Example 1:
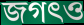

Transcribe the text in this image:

জগৎও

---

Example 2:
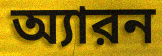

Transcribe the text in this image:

অ্যারন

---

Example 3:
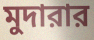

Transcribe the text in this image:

মুদারার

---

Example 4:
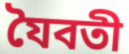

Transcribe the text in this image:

যৈবতী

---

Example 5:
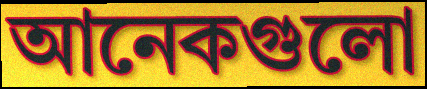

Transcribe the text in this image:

আনেকগুলো